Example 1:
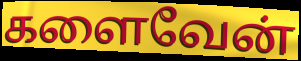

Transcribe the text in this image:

களைவேன்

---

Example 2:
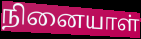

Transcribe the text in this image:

நினையாள்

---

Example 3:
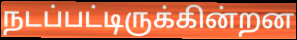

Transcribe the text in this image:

நடப்பட்டிருக்கின்றன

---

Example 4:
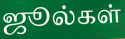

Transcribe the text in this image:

ஜூல்கள்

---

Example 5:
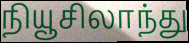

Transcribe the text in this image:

நியூசிலாந்து